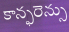
కాన్ఫరెన్సు